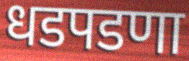
धडपडणा